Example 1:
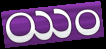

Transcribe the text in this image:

యిం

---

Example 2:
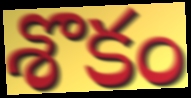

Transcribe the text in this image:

శొకం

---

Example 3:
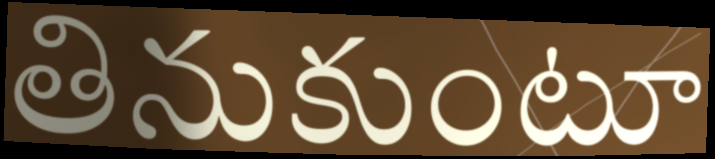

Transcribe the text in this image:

తినుకుంటూ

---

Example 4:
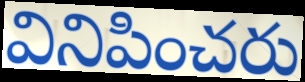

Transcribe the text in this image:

వినిపించరు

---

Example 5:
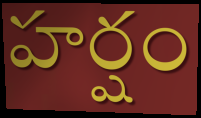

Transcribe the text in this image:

హర్షం